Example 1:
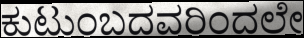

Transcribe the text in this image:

ಕುಟುಂಬದವರಿಂದಲೇ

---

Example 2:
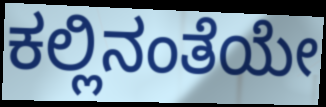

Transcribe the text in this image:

ಕಲ್ಲಿನಂತೆಯೇ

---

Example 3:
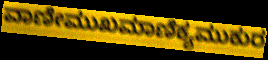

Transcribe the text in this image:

ವಾಣೀಮುಖಮಾಣಿಕ್ಯಮುಕುರ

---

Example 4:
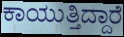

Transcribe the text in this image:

ಕಾಯುತ್ತಿದ್ದಾರೆ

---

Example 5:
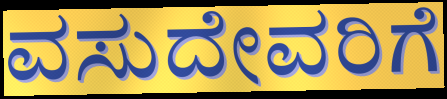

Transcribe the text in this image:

ವಸುದೇವರಿಗೆ